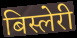
बिस्लेरी